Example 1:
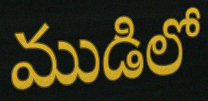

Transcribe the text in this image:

ముడిలో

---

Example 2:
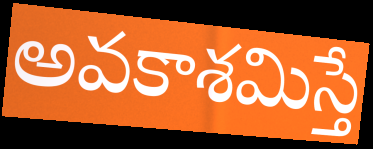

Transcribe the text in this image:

అవకాశమిస్తే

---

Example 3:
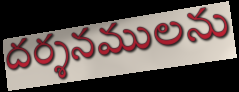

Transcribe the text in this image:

దర్శనములను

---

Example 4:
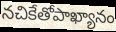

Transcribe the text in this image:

నచికేతోపాఖ్యానం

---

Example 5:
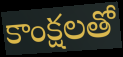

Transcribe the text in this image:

కాంక్షలతో